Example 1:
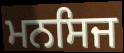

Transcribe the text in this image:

ਮਨਸਿਜ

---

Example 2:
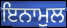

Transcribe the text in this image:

ਇਨਾਮੁਲ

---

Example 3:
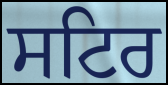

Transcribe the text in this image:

ਸਟਿਰ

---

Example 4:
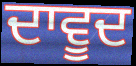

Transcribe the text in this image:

ਦਾਵੂਦ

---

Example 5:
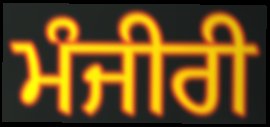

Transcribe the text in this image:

ਮੰਜੀਰੀ